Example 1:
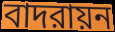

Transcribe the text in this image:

বাদরায়ন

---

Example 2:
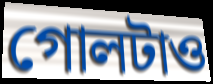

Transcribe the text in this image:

গোলটাও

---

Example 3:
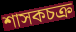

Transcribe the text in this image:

শাসকচক্র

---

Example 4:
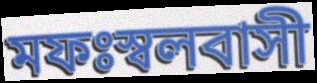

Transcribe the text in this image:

মফঃস্বলবাসী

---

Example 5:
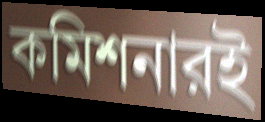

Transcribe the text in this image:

কমিশনারই